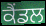
ਕੈਂਡਲ